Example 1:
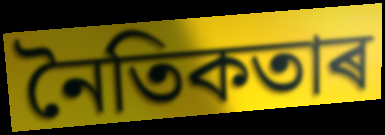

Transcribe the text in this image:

নৈতিকতাৰ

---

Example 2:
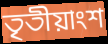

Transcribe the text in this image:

তৃতীয়াংশ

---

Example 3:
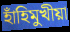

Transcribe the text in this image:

হাঁহিমুখীয়া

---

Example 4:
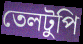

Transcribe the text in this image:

তেলটুপি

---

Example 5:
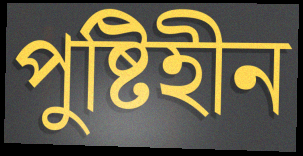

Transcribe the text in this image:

পুষ্টিহীন